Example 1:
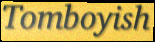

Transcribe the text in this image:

Tomboyish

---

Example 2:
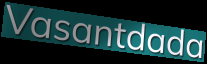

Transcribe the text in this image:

Vasantdada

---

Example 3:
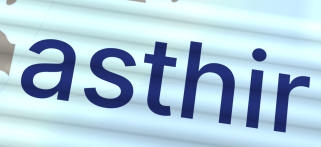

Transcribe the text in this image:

asthir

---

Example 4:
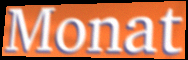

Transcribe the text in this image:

Monat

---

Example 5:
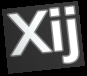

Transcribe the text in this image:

Xij